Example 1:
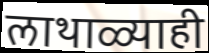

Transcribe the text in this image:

लाथाळ्याही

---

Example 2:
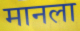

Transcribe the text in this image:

मानला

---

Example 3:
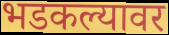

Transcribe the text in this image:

भडकल्यावर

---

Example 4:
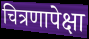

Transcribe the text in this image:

चित्रणापेक्षा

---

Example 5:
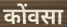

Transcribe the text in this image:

कोंवसा